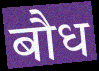
बौध